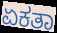
ಏಕತಾ